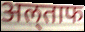
अल्ताफ